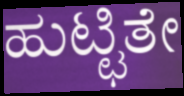
ಹುಟ್ಟಿತೇ